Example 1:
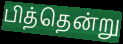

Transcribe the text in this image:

பித்தென்று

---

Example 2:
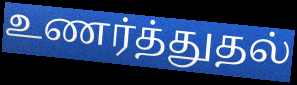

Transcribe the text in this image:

உணர்த்துதல்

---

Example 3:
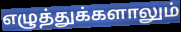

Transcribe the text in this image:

எழுத்துக்களாலும்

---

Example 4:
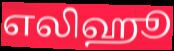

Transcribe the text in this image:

எலிஹூ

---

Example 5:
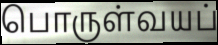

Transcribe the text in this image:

பொருள்வயப்